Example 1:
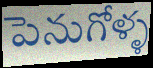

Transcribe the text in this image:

పెనుగోళ్ళ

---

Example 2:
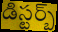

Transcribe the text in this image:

డిస్టర్బ్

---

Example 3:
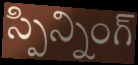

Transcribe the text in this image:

స్పిన్నింగ్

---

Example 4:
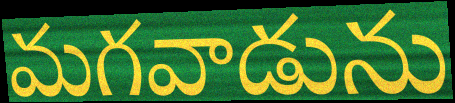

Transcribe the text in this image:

మగవాడును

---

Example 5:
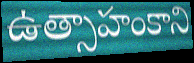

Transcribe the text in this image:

ఉత్సాహంకాని